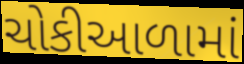
ચોકીઆળામાં